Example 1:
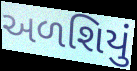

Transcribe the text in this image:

અળશિયું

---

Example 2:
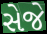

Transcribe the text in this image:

સેજે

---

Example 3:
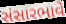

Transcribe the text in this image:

સંસારભાવે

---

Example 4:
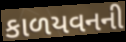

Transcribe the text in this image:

કાળયવનની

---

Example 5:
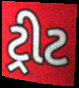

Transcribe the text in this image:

ટ્રીટ